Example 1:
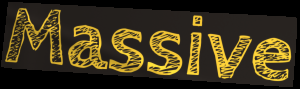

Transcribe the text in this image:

Massive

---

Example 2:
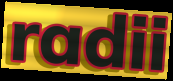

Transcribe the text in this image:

radii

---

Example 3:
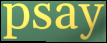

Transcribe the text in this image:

psay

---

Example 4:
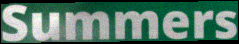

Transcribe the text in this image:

Summers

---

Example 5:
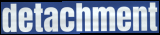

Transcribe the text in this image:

detachment